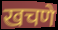
खचणे